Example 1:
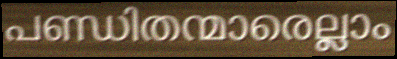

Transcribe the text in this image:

പണ്ഡിതന്മാരെല്ലാം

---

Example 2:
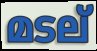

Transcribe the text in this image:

മടല്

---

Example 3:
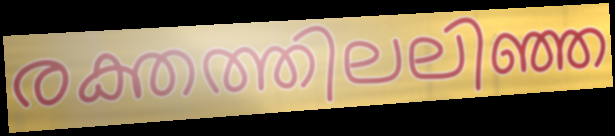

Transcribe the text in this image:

രക്തത്തിലലിഞ്ഞ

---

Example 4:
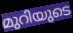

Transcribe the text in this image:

മുറിയുടെ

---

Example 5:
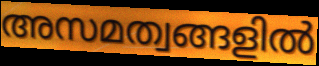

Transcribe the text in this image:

അസമത്വങ്ങളിൽ